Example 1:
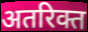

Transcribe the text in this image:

अतरिक्त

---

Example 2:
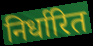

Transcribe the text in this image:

निर्धारित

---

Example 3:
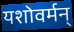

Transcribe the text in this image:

यशोवर्मन्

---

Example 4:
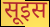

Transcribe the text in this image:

सूइस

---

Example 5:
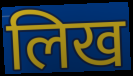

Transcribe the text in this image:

लिख